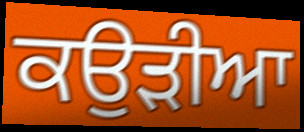
ਕਉੜੀਆ